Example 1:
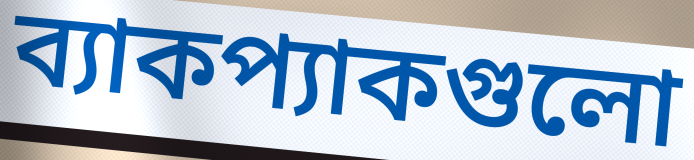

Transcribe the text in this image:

ব্যাকপ্যাকগুলো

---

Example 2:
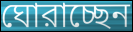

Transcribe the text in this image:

ঘোরাচ্ছেন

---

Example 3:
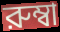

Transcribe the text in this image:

রুম্বা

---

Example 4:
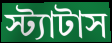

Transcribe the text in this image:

স্ট্যাটাস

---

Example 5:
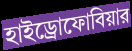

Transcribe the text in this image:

হাইড্রোফোবিয়ার